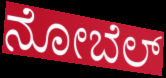
ನೋಬೆಲ್